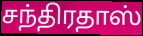
சந்திரதாஸ்